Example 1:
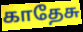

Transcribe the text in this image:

காதேசு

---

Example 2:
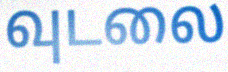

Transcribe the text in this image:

வுடலை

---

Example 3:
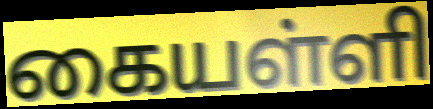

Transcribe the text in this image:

கையள்ளி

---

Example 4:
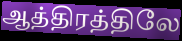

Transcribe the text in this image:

ஆத்திரத்திலே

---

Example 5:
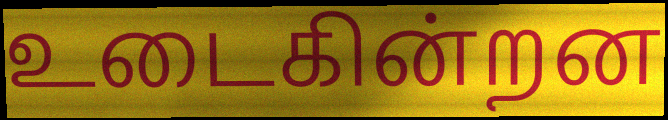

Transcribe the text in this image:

உடைகின்றன